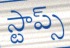
స్టాప్స్